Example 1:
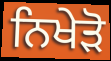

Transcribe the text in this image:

ਨਿਖੇੜੋ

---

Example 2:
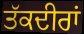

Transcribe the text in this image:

ਤੱਕਦੀਰਾਂ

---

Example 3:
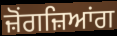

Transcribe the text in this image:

ਜ਼ੋਂਗਜ਼ਿਆਂਗ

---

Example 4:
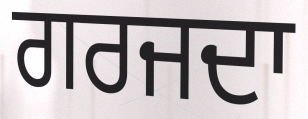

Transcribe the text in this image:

ਗਰਜਦਾ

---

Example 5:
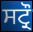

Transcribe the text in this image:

ਸਟ੍ਰੌ